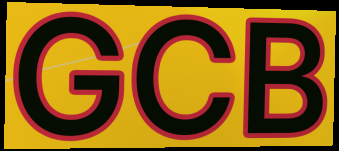
GCB